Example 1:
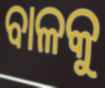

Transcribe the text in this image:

ବାଳକୁ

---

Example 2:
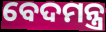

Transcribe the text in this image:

ବେଦମନ୍ତ୍ର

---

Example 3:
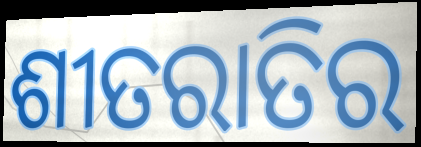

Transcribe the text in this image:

ଶୀତରାତିର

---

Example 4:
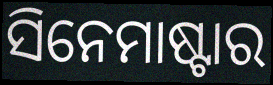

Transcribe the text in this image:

ସିନେମାଷ୍ଟାର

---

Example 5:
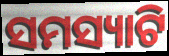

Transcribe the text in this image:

ସମସ୍ୟାଟି